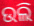
ଉଲି